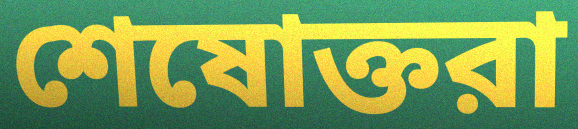
শেষোক্তরা